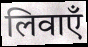
लिवाएँ